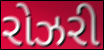
રોઝરી